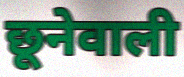
छूनेवाली